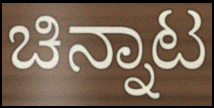
ಚಿನ್ನಾಟ